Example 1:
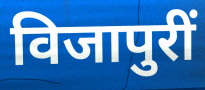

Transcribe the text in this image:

विजापुरीं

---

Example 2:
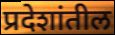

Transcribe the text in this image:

प्रदेशांतील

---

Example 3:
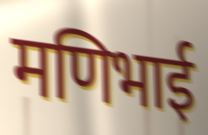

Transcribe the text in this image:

मणिभाई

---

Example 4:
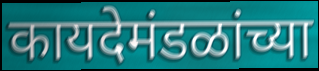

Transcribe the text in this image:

कायदेमंडळांच्या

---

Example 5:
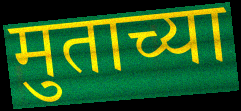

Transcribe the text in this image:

मुताच्या